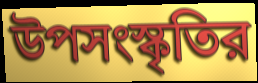
উপসংস্কৃতির